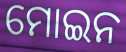
ମୋଇନ